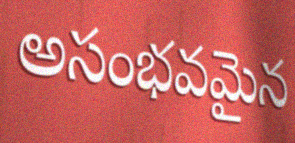
అసంభవమైన